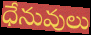
ధేనువులు